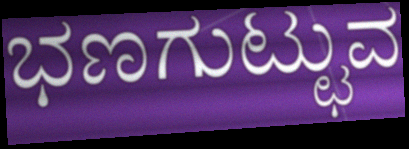
ಭಣಗುಟ್ಟುವ